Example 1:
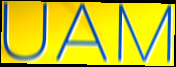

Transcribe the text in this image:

UAM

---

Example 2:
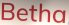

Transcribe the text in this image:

Betha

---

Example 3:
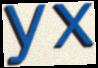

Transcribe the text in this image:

yx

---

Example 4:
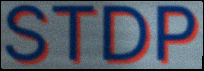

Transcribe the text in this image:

STDP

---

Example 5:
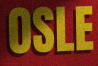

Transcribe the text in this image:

OSLE